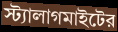
স্ট্যালাগমাইটের